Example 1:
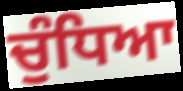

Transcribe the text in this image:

ਚੁੰਧਿਆ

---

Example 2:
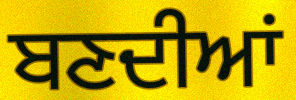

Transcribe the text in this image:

ਬਣਦੀਆਂ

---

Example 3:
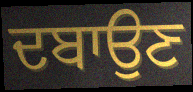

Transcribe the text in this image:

ਦਬਾਉਣ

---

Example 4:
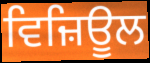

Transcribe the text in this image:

ਵਿਜ਼ਿਊਲ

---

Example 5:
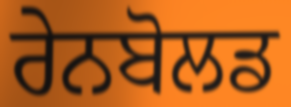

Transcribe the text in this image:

ਰੇਨਬੋਲਡ